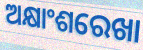
ଅକ୍ଷାଂଶରେଖା